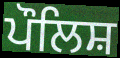
ਪੌਲਿਸ਼